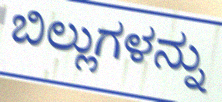
ಬಿಲ್ಲುಗಳನ್ನು